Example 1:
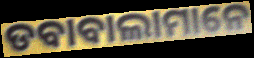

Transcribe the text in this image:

ଡବାବାଲାମାନେ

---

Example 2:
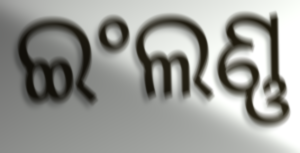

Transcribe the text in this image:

ଇଂଲଣ୍ଣ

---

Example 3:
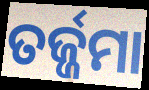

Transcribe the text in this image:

ତର୍ଜ୍ଜମା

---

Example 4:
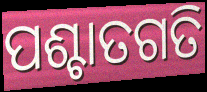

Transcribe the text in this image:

ପଶ୍ଚାତଗତି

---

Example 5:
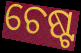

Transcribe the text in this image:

ଚେଷ୍ଟ